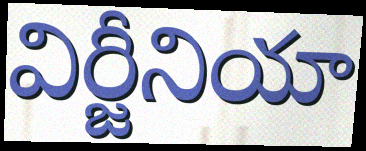
విర్జీనియా